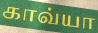
காவ்யா